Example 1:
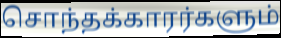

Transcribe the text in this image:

சொந்தக்காரர்களும்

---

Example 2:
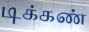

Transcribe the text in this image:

டிக்கண்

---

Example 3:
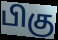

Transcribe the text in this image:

பிகு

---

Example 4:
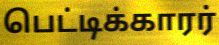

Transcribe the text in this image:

பெட்டிக்காரர்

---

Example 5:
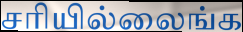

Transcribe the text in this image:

சரியில்லைங்க